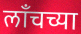
लाँचच्या